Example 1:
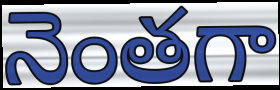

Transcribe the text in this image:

నెంతగా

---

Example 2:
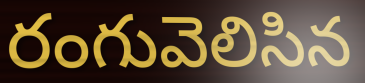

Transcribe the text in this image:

రంగువెలిసిన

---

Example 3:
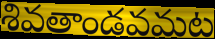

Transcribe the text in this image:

శివతాండవమట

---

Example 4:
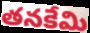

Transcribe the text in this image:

తనకేమి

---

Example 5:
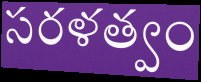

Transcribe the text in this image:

సరళత్వం